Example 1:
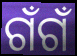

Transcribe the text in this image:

ଗଁଗଁ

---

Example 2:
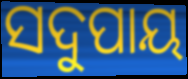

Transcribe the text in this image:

ସଦୁପାୟ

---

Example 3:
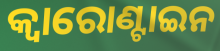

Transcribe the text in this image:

କ୍ୱାରୋଣ୍ଟାଇନ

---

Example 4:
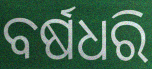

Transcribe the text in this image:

ବର୍ଷଧରି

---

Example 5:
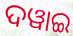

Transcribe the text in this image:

ଦୱାଇ